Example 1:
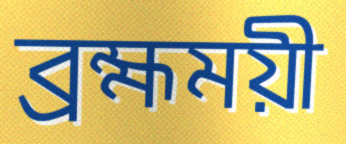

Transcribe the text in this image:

ব্রহ্মময়ী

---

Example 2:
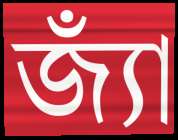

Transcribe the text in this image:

জ্যাঁ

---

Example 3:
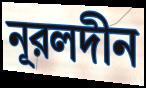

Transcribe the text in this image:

নূরলদীন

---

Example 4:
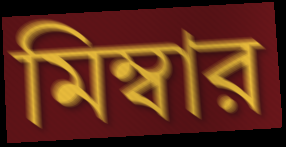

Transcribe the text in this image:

মিম্বার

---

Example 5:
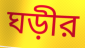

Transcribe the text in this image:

ঘড়ীর